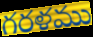
గరళము